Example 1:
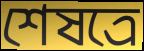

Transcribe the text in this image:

শেষত্রে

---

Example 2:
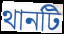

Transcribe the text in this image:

থানটি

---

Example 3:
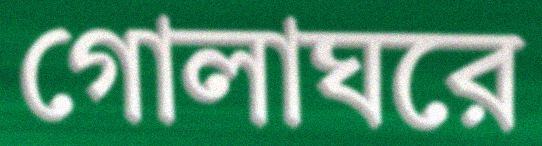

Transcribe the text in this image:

গোলাঘরে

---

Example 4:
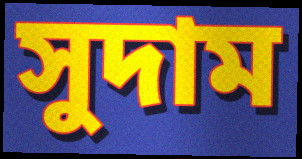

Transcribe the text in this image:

সুদাম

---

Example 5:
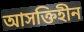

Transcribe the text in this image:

আসক্তিহীন